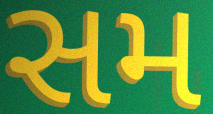
સમ